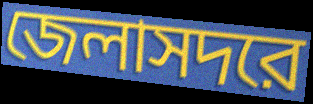
জেলাসদরে